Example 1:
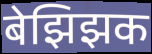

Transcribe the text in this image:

बेझिझक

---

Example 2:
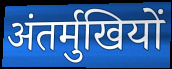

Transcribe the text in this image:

अंतर्मुखियों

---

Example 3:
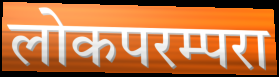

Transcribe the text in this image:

लोकपरम्परा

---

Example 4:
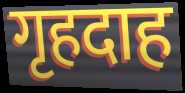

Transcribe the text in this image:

गृहदाह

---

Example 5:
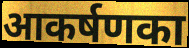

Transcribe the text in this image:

आकर्षणका